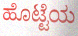
ಹೊಟ್ಟೆಯ